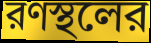
রণস্থলের